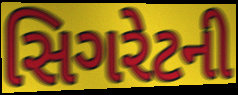
સિગરેટની